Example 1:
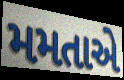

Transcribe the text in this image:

મમતાએ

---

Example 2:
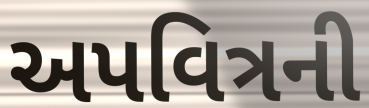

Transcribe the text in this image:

અપવિત્રની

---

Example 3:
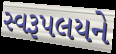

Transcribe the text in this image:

સ્વરૂપલયને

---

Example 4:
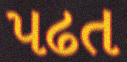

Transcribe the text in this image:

પઢત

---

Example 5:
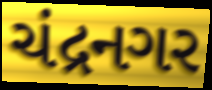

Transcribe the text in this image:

ચંદ્રનગર